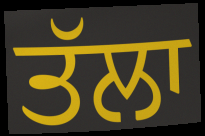
ਤੱਲਾ